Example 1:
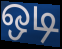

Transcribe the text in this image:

ஒடி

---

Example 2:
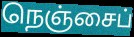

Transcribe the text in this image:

நெஞ்சைப்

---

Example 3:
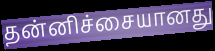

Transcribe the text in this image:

தன்னிச்சையானது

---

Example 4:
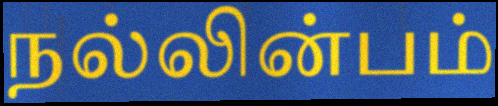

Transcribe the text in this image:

நல்லின்பம்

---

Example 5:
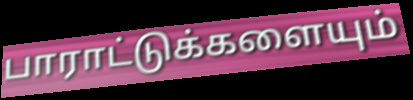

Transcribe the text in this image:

பாராட்டுக்களையும்